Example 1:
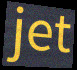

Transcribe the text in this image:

jet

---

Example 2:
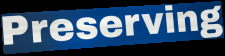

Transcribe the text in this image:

Preserving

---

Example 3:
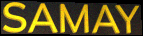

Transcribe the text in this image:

SAMAY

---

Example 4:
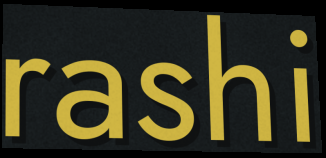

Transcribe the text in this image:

rashi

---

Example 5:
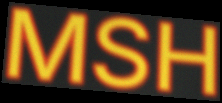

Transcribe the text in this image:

MSH